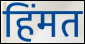
हिंमत